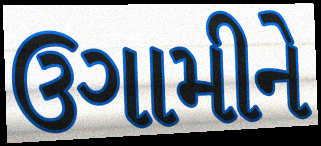
ઉગામીને